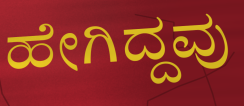
ಹೇಗಿದ್ದವು